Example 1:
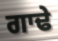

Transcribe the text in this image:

ਗਾਢੇ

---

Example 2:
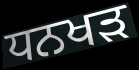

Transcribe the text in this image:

ਧਨਖਡ਼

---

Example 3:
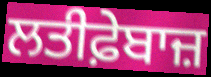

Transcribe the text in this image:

ਲਤੀਫ਼ੇਬਾਜ਼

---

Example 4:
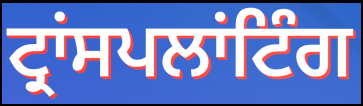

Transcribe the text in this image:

ਟ੍ਰਾਂਸਪਲਾਂਟਿੰਗ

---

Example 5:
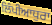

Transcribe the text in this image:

ਲਿੰਪੀਆਧੁਰਾ